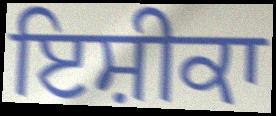
ਇਸ਼ੀਕਾ